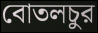
বোতলচুর